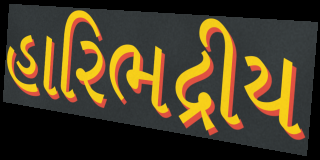
હારિભદ્રીય